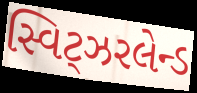
સ્વિટ્ઝરલેન્ડ